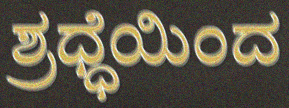
ಶ್ರಧ್ಧೆಯಿಂದ